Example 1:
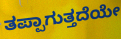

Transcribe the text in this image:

ತಪ್ಪಾಗುತ್ತದೆಯೇ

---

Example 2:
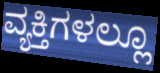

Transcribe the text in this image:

ವ್ಯಕ್ತಿಗಳಲ್ಲೂ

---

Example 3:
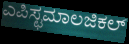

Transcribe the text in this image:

ಎಪಿಸ್ಟಮಾಲಜಿಕಲ್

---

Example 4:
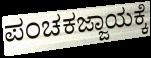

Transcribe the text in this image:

ಪಂಚಕಜ್ಜಾಯಕ್ಕೆ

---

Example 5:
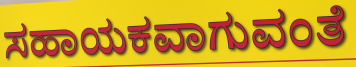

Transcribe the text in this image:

ಸಹಾಯಕವಾಗುವಂತೆ